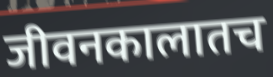
जीवनकालातच